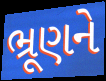
ભ્રૂણને